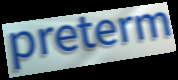
preterm